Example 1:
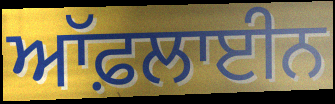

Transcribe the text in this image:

ਆੱਫ਼ਲਾਈਨ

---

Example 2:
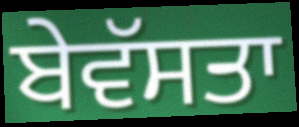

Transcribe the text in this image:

ਬੇਵੱਸਤਾ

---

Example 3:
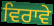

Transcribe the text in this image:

ਵਿਰਾਵੇ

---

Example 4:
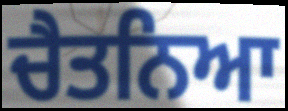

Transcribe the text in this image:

ਚੈਤਨਿਆ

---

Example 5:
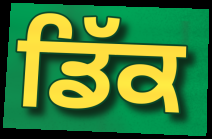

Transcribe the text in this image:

ਡਿੱਕ